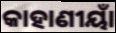
କାହାଣୀୟାଁ